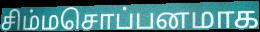
சிம்மசொப்பனமாக